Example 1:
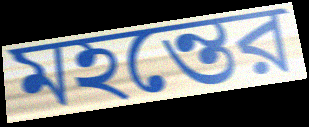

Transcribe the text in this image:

মহন্তের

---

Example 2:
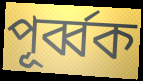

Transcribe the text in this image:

পূর্ব্বক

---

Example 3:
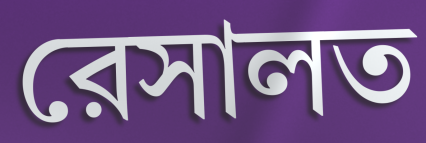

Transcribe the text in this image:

রেসালত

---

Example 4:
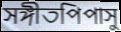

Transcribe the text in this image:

সঙ্গীতপিপাসু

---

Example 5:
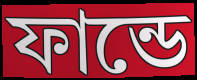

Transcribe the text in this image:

ফান্ডে